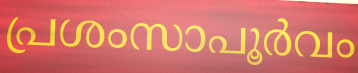
പ്രശംസാപൂർവം